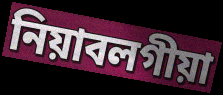
নিয়াবলগীয়া